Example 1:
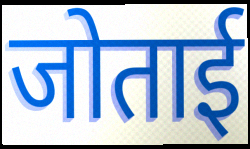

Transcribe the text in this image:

जोताई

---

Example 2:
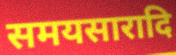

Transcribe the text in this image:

समयसारादि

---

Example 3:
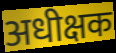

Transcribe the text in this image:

अधीक्षक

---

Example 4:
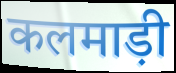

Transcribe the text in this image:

कलमाड़ी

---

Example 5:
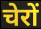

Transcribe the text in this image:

चेरों